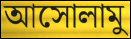
আসোলামু